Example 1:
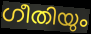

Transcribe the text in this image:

ഗീതിയും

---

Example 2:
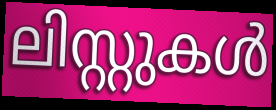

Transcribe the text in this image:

ലിസ്റ്റുകൾ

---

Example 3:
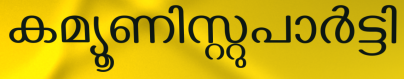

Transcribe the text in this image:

കമ്യൂണിസ്റ്റുപാർട്ടി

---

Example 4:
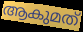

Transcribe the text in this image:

ആകുമത്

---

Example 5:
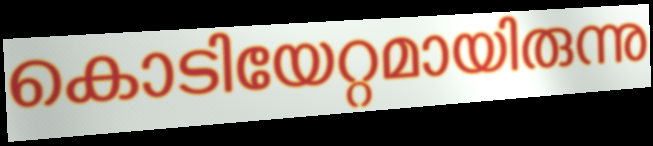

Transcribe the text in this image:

കൊടിയേറ്റമായിരുന്നു